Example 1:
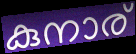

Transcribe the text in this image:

കുനാര്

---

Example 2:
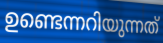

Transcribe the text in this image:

ഉണ്ടെന്നറിയുന്നത്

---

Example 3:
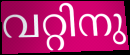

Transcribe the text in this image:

വറ്റിനു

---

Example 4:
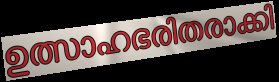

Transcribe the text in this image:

ഉത്സാഹഭരിതരാക്കി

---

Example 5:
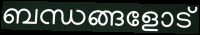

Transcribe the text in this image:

ബന്ധങ്ങളോട്